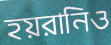
হয়রানিও